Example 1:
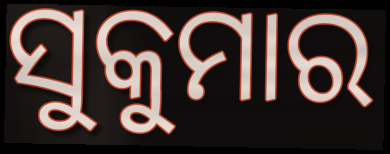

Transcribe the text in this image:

ସୁକୁମାର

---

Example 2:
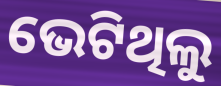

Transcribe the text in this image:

ଭେଟିଥିଲୁ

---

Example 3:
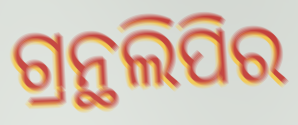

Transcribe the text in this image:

ଗ୍ରନ୍ଥଲିପିର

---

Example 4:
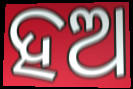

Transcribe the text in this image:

ହଅ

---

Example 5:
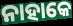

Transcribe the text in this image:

ନାହାକେ